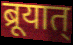
ब्रूयात्